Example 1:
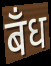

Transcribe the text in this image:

बँध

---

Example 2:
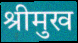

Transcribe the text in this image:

श्रीमुख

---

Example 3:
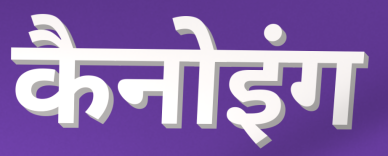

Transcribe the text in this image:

कैनोइंग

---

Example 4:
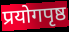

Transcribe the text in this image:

प्रयोगपृष्ठ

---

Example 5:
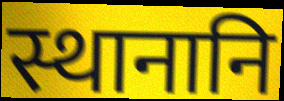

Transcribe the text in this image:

स्थानानि